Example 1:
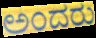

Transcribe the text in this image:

ಅಂದರು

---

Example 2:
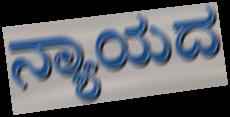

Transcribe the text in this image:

ನ್ಯಾಯದ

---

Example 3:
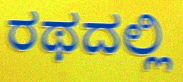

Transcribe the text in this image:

ರಥದಲ್ಲಿ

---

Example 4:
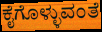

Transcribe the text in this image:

ಕೈಗೊಳ್ಳುವಂತೆ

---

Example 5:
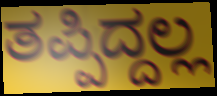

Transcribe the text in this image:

ತಪ್ಪಿದ್ದಲ್ಲ